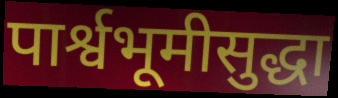
पार्श्वभूमीसुद्धा